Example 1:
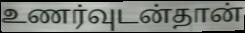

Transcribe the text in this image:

உணர்வுடன்தான்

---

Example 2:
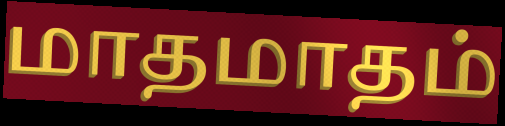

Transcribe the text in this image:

மாதமாதம்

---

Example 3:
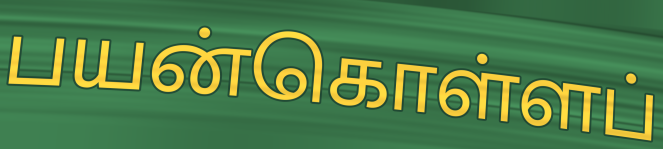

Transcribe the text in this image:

பயன்கொள்ளப்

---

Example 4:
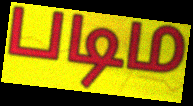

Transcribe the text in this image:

படிம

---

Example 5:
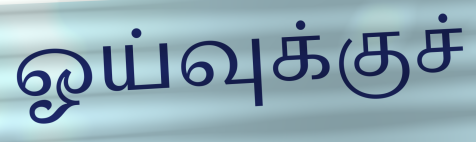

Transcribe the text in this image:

ஓய்வுக்குச்